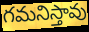
గమనిస్తావు